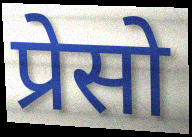
प्रेसो